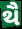
થૈ